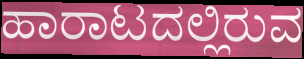
ಹಾರಾಟದಲ್ಲಿರುವ